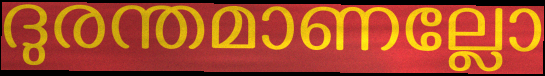
ദുരന്തമാണല്ലോ